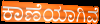
ಕಾಣೆಯಾಗಿವೆ